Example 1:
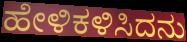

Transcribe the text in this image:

ಹೇಳಿಕಳಿಸಿದನು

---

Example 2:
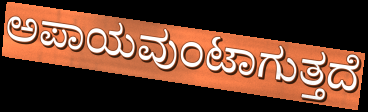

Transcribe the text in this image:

ಅಪಾಯವುಂಟಾಗುತ್ತದೆ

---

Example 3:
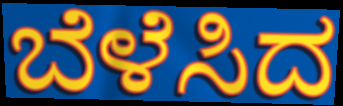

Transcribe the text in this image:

ಬೆಳೆಸಿದ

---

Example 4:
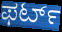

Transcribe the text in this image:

ಫರ್ಟ್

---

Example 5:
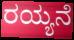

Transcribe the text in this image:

ರಯ್ಯನೆ